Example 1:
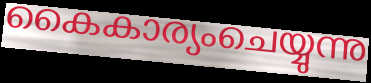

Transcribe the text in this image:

കൈകാര്യംചെയ്യുന്നു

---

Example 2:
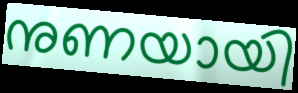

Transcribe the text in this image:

നുണയായി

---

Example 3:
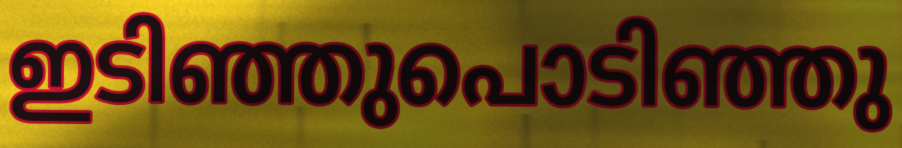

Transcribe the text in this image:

ഇടിഞ്ഞുപൊടിഞ്ഞു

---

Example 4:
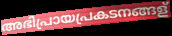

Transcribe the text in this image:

അഭിപ്രായപ്രകടനങ്ങള്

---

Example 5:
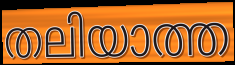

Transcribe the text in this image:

തലിയാത്ത